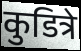
कुडित्रे